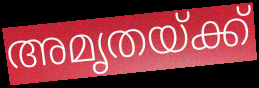
അമൃതയ്ക്ക്